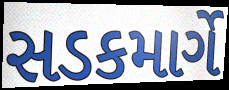
સડકમાર્ગે